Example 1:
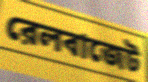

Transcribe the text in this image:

রেলবাজেট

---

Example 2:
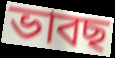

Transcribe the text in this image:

ভাবছ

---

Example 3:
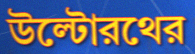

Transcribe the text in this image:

উল্টোরথের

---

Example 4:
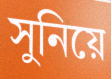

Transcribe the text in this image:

সুনিয়ে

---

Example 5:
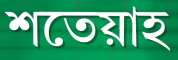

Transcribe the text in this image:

শতেয়াহ